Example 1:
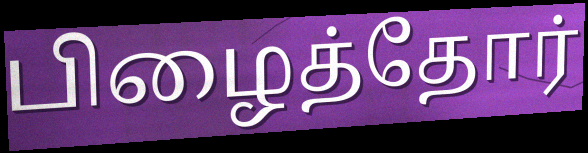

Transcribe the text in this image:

பிழைத்தோர்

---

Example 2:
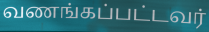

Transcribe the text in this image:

வணங்கப்பட்டவர்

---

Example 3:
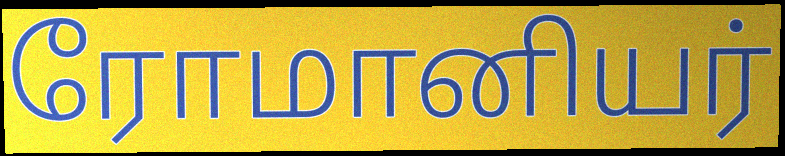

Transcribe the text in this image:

ரோமானியர்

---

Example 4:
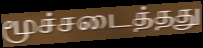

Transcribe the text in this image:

மூச்சடைத்தது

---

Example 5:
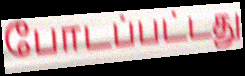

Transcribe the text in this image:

போடப்பட்டது